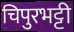
चिपुरभट्टी